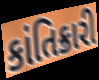
કાંતિક્રારી